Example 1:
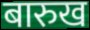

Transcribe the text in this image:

बारुख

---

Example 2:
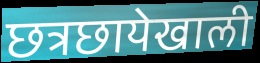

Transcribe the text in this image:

छत्रछायेखाली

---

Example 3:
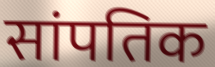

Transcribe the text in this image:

सांपतिक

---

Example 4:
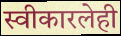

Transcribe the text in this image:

स्वीकारलेही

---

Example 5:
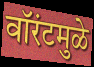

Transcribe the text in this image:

वॉरंटमुळे